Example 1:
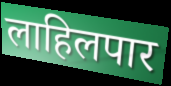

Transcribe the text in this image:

लाहिलपार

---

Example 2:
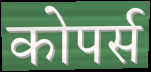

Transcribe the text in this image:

कोपर्स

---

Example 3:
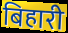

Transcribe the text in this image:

बिहारी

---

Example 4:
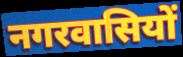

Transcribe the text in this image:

नगरवासियों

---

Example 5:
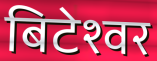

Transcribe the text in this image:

बिटेश्वर